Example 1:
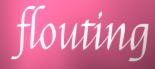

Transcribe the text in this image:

flouting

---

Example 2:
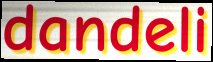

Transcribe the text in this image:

dandeli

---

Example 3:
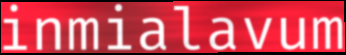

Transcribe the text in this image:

inmialavum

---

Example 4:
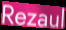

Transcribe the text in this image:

Rezaul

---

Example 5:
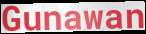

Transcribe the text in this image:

Gunawan